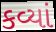
કવ્યાં